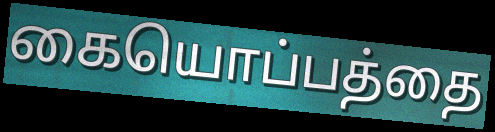
கையொப்பத்தை